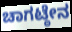
ಚಾಗಟ್ಠೇನ